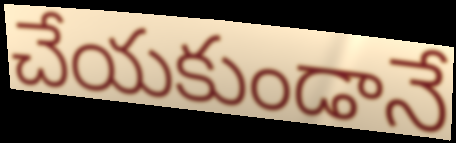
చేయకుండానే